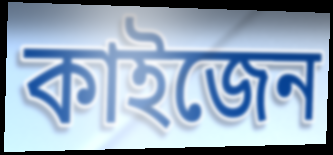
কাইজেন